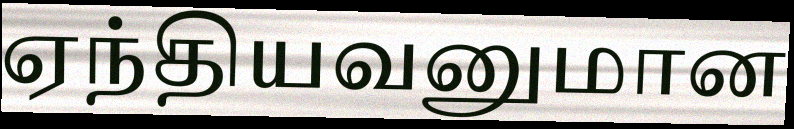
ஏந்தியவனுமான